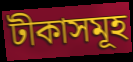
টীকাসমূহ